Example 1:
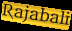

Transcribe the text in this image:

Rajabali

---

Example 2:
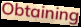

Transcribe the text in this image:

Obtaining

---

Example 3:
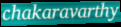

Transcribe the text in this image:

chakaravarthy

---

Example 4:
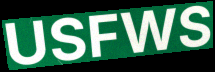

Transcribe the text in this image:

USFWS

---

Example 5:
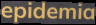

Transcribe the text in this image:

epidemia